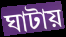
ঘাটায়